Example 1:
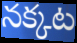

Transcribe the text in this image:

నక్కట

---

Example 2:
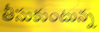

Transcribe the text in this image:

తీసుకుంటున్న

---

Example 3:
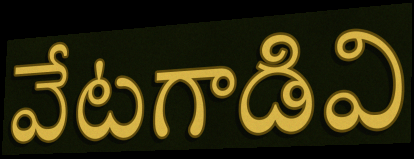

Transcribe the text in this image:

వేటగాడివి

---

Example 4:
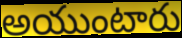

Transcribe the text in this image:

అయుంటారు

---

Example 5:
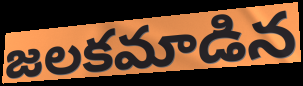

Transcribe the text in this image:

జలకమాడిన